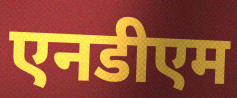
एनडीएम